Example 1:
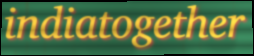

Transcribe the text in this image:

indiatogether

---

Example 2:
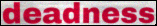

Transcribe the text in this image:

deadness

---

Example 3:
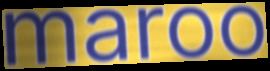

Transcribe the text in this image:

maroo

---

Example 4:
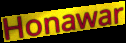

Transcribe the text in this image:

Honawar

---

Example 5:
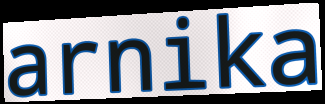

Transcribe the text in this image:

arnika